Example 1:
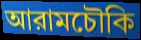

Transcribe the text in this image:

আরামচৌকি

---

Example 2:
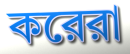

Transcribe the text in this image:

করেরা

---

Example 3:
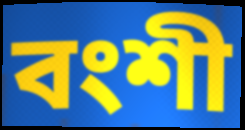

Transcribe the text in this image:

বংশী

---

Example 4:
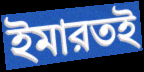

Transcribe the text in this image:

ইমারতই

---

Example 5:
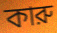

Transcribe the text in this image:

কারু